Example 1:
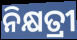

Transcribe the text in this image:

ନିକ୍ଷତ୍ରୀ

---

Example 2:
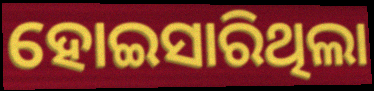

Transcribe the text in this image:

ହୋଇସାରିଥିଲା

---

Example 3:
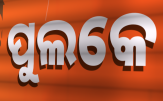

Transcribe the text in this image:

ପୁଲକେ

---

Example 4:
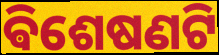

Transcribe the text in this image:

ଵିଶେଷଣଟି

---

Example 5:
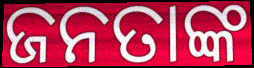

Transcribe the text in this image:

ଜନତାଙ୍କ